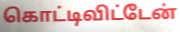
கொட்டிவிட்டேன்